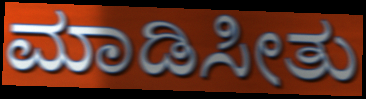
ಮಾಡಿಸೀತು